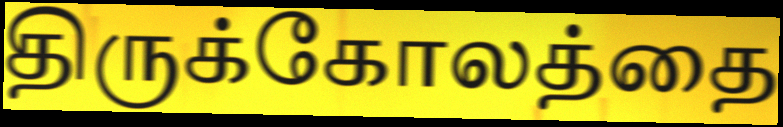
திருக்கோலத்தை